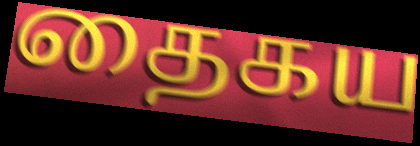
தைகய